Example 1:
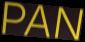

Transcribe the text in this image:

PAN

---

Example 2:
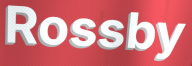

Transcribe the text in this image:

Rossby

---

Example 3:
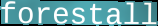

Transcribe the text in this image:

forestall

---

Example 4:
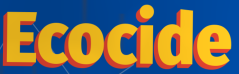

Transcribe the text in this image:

Ecocide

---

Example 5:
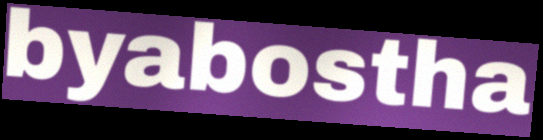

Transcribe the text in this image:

byabostha